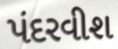
પંદરવીશ